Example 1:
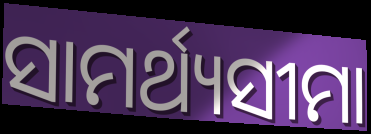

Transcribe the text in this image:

ସାମର୍ଥ୍ୟସୀମା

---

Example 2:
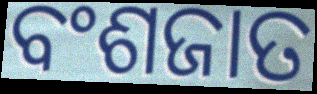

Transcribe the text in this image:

ବଂଶଜାତ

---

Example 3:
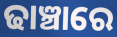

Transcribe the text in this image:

ଢାଞ୍ଚାରେ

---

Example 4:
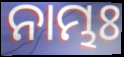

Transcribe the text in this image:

ନାମ୍ଭଃ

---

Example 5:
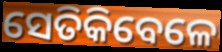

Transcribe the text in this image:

ସେତିକିବେଳେ